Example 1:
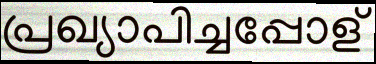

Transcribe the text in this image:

പ്രഖ്യാപിച്ചപ്പോള്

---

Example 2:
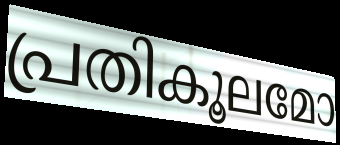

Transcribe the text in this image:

പ്രതികൂലമോ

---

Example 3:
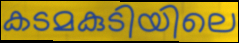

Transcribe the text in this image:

കടമകുടിയിലെ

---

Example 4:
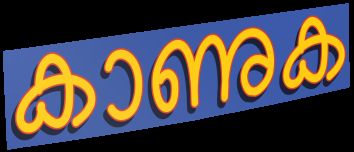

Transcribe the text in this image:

കാണുക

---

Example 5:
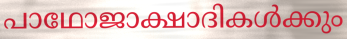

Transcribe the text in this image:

പാഥോജാക്ഷാദികൾക്കും